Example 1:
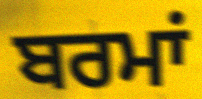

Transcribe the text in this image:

ਬਰਮਾਂ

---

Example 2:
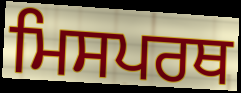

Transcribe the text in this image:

ਮਿਸਪਰਥ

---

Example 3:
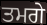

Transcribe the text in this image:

ਤਮਗੇ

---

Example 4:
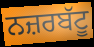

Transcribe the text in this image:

ਨਜ਼ਰਬੱਟੂ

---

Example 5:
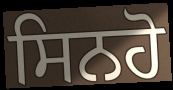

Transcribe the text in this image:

ਸਿਨਹੋ